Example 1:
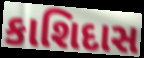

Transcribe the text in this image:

કાશિદાસ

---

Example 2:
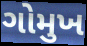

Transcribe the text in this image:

ગોમુખ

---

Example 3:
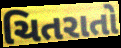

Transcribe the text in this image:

ચિતરાતો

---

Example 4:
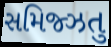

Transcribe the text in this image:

સમિજ્ઝતુ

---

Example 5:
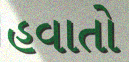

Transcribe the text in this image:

હવાતો